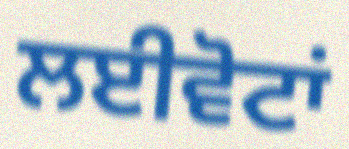
ਲਈਵੋਟਾਂ